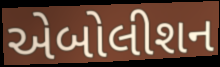
એબોલીશન